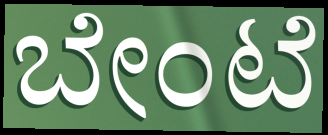
ಬೇಂಟೆ